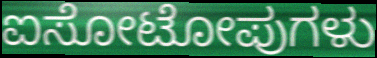
ಐಸೋಟೋಪುಗಳು